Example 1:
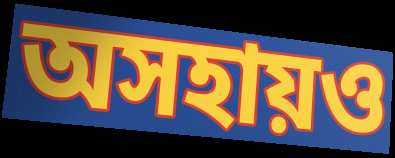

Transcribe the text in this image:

অসহায়ও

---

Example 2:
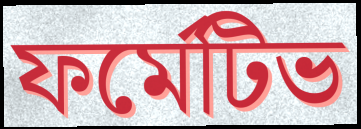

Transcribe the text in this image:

ফর্মেটিভ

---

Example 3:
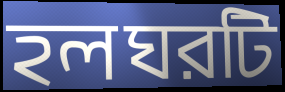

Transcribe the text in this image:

হলঘরটি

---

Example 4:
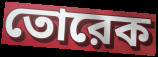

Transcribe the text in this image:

তোরেক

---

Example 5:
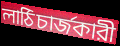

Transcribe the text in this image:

লাঠিচার্জকারী